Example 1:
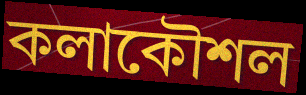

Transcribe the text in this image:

কলাকৌশল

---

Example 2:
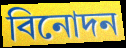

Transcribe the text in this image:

বিনোদন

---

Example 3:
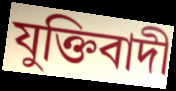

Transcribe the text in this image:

যুক্তিবাদী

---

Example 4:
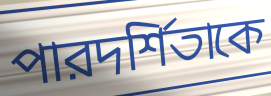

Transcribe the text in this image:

পারদর্শিতাকে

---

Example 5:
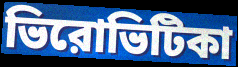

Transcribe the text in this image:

ভিরোভিটিকা